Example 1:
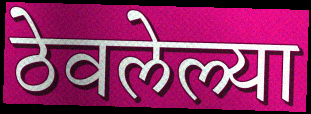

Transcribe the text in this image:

ठेवलेल्या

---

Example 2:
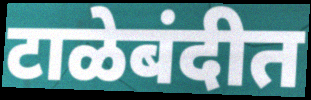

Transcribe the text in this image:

टाळेबंदीत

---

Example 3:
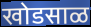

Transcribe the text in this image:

खोडसाळ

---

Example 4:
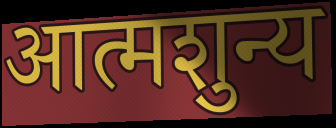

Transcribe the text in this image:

आत्मशुन्य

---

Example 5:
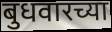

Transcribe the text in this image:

बुधवारच्या